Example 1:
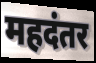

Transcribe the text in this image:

महदंतर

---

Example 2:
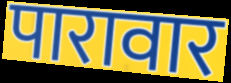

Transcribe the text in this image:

पारावार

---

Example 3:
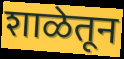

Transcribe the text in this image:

शाळेतून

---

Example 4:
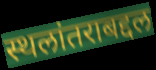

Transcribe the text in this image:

स्थलांतराबद्दल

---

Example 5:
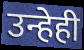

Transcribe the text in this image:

उन्हेही